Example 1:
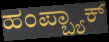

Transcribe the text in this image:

ಹಂಪ್ಬ್ಯಾಕ್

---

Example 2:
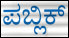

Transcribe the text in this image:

ಪಬ್ಲಿಕ್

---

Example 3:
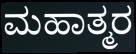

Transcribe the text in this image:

ಮಹಾತ್ಮರ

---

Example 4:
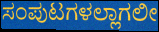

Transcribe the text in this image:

ಸಂಪುಟಗಳಲ್ಲಾಗಲೀ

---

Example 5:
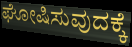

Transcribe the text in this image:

ಘೋಷಿಸುವುದಕ್ಕೆ